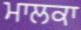
ਮਾਲਕਾ